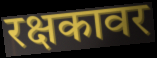
रक्षकावर